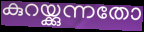
കുറയ്ക്കുന്നതോ